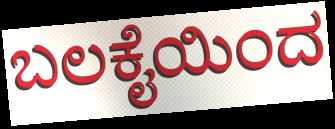
ಬಲಕೈಯಿಂದ